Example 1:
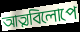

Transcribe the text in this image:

আত্মবিলোপে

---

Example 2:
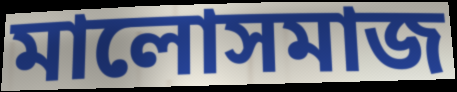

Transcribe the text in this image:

মালোসমাজ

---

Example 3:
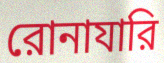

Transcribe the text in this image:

রোনাযারি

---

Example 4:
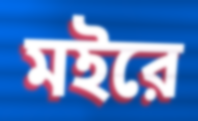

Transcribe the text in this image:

মইরে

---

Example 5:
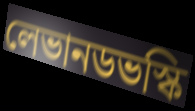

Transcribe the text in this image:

লেভানডভস্কি